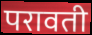
परावती